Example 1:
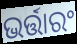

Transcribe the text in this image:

ଭର୍ତ୍ତାରଂ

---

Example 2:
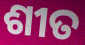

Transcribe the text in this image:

ଶୀତ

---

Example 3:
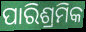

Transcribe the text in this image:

ପାରିଶ୍ରମିକ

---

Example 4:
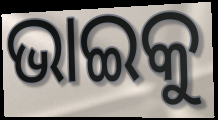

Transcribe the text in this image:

ଭାଇକୁ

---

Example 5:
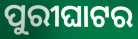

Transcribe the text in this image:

ପୁରୀଘାଟର